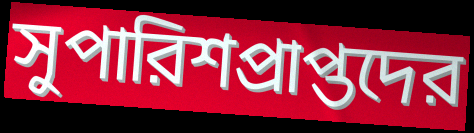
সুপারিশপ্রাপ্তদের